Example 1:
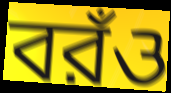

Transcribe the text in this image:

বরঁও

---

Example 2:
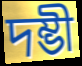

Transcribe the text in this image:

দম্ভী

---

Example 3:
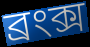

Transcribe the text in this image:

ব্রংক্স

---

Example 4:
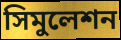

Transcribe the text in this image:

সিমুলেশন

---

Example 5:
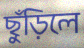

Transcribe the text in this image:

ছুঁড়িলে